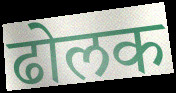
ढोलक